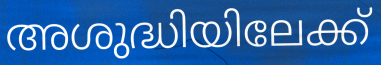
അശുദ്ധിയിലേക്ക്